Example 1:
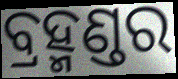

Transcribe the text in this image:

ବ୍ରହ୍ମଣ୍ଡର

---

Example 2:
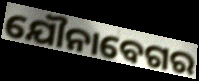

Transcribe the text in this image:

ଯୌନାବେଗର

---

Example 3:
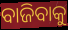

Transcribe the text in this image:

ବାଜିବାକୁ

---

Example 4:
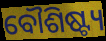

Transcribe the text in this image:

ବୌଶିଷ୍ଟ୍ୟ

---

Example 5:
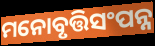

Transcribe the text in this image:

ମନୋବୃତ୍ତିସଂପନ୍ନ